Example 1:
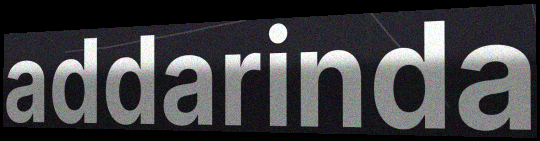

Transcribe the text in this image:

addarinda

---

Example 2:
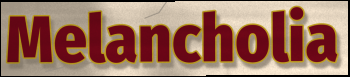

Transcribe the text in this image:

Melancholia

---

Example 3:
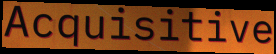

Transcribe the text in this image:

Acquisitive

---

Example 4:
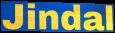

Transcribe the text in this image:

Jindal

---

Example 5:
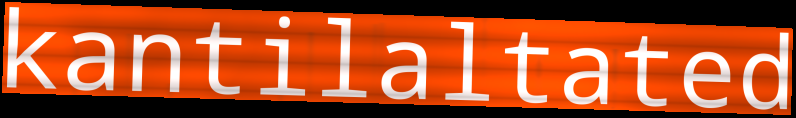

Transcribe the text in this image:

kantilaltated